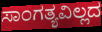
ಸಾಂಗತ್ಯವಿಲ್ಲದ